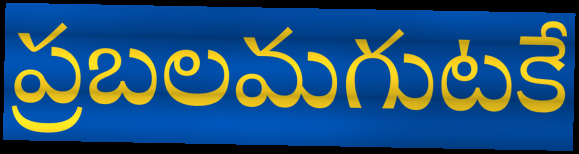
ప్రబలమగుటకే